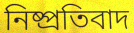
নিষ্প্রতিবাদ